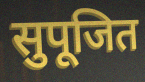
सुपूजित